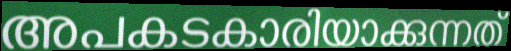
അപകടകാരിയാക്കുന്നത്